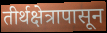
तीर्थक्षेत्रापासून